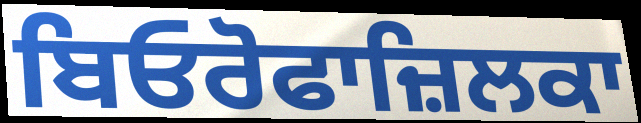
ਬਿਓਰੋਫਾਜ਼ਿਲਕਾ